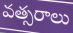
వత్సరాలు